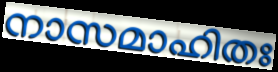
നാസമാഹിതഃ